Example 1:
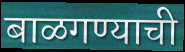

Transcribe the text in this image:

बाळगण्याची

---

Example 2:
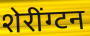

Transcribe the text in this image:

शेरींग्टन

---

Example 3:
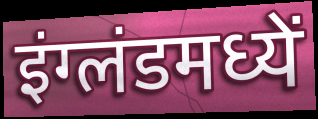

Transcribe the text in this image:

इंग्लंडमध्यें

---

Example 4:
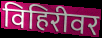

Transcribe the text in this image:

विहिरीवर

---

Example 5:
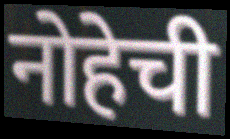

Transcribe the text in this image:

नोहेची